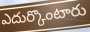
ఎదుర్కొంటారు